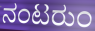
ನಂಟರುಂ